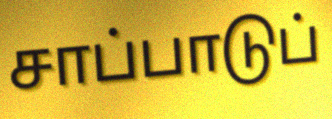
சாப்பாடுப்